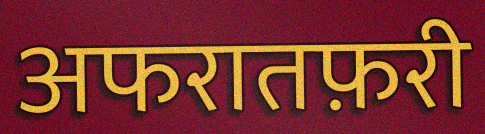
अफरातफ़री